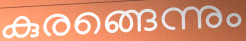
കുരങ്ങെന്നും